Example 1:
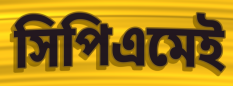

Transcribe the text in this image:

সিপিএমেই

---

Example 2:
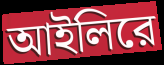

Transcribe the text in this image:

আইলিরে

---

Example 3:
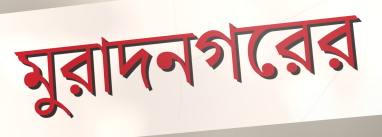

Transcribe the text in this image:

মুরাদনগরের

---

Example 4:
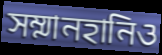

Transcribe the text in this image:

সম্মানহানিও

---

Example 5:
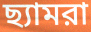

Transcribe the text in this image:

ছ্যামরা